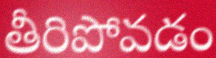
తీరిపోవడం